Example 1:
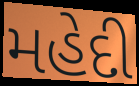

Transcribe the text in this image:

મહેદી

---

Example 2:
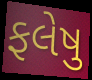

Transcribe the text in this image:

ફલેષુ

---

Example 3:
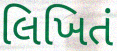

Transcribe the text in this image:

લિખિતં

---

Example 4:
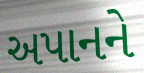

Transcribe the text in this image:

અપાનને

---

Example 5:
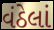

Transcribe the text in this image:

વંઠેલાં